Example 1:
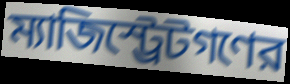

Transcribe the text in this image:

ম্যাজিস্ট্রেটগণের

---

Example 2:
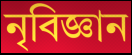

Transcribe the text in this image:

নৃবিজ্ঞান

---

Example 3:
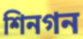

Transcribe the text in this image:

শিনগন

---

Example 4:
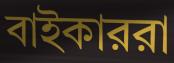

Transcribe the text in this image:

বাইকাররা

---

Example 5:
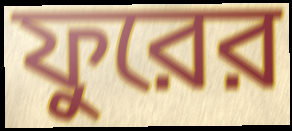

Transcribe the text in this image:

ফুরের